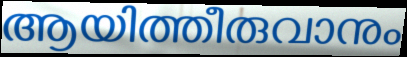
ആയിത്തീരുവാനും